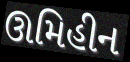
ઊમિહીન